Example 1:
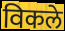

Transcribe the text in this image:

विकले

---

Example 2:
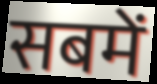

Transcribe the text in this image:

सबमें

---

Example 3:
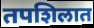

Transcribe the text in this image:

तपशिलात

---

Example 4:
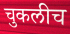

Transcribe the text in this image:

चुकलीच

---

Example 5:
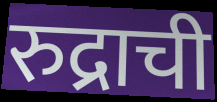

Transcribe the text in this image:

रुद्राची